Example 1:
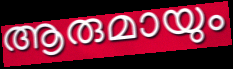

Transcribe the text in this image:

ആരുമായും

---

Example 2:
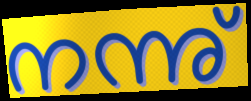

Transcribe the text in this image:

നന്നു്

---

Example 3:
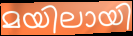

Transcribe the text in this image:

മയിലായി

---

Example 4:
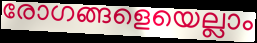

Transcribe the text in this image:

രോഗങ്ങളെയെല്ലാം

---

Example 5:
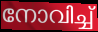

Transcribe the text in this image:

നോവിച്ച്